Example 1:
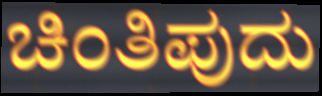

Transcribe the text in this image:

ಚಿಂತಿಪುದು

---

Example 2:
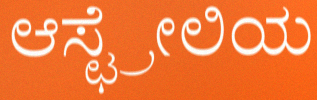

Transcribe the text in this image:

ಆಸ್ಟ್ರೇಲಿಯ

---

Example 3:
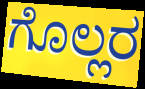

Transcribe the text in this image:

ಗೊಲ್ಲರ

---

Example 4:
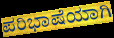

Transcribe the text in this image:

ಪರಿಭಾಷೆಯಾಗಿ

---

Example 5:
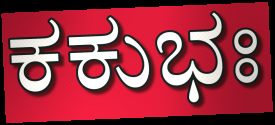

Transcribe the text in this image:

ಕಕುಭಃ